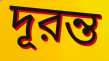
দূরন্ত